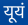
यूयं